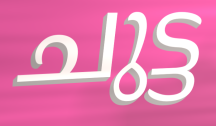
ചുട്ട